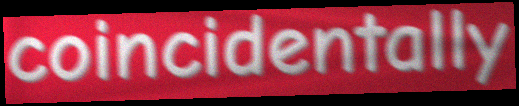
coincidentally